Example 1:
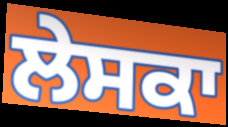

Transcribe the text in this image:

ਲੇਸਕਾ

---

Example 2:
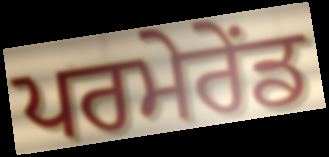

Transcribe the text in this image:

ਪਰਮੇਰੇਂਡ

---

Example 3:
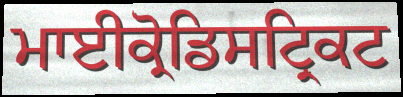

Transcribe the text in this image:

ਮਾਈਕ੍ਰੋਡਿਸਟ੍ਰਿਕਟ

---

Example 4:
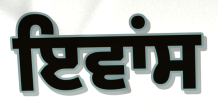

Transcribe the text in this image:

ਇਵਾਂਸ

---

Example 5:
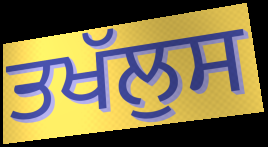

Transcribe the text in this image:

ਤਖੱਲੁਸ